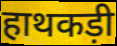
हाथकड़ी